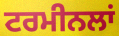
ਟਰਮੀਨਲਾਂ